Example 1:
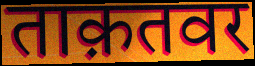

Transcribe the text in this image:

ताक़तवर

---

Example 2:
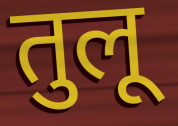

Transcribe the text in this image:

तुलू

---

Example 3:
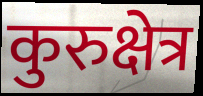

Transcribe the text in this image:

कुरुक्षेत्र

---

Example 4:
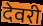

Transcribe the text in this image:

देवरी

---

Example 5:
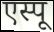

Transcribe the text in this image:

एस्पू